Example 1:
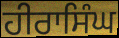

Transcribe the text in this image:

ਹੀਰਾਸਿੰਘ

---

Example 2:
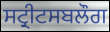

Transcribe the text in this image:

ਸਟ੍ਰੀਟਸਬਲੌਗ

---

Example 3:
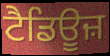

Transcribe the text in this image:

ਟੈਡਿਊਜ਼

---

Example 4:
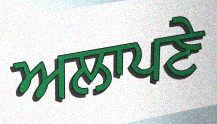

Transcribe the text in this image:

ਅਲਾਪਣੇ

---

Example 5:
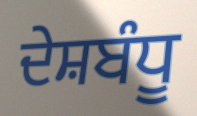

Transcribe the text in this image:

ਦੇਸ਼ਬੰਧੂ